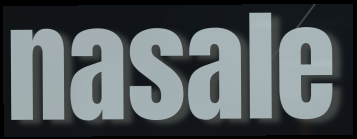
nasale